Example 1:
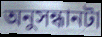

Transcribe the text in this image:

অনুসন্ধানটা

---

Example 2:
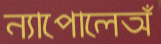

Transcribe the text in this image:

ন্যাপোলেঅঁ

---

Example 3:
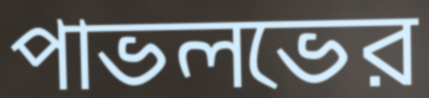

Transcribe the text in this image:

পাভলভের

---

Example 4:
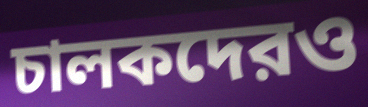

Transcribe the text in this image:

চালকদেরও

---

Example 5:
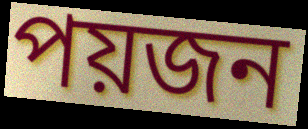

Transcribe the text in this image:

পয়জন